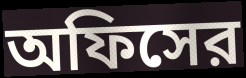
অফিসের